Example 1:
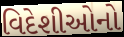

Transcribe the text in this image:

વિદેશીઓનો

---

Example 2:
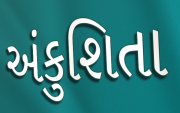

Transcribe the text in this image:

અંકુશિતા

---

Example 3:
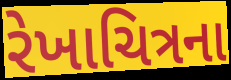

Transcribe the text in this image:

રેખાચિત્રના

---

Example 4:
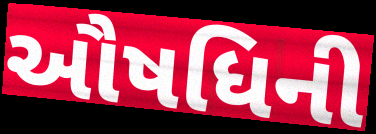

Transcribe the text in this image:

ઔષધિની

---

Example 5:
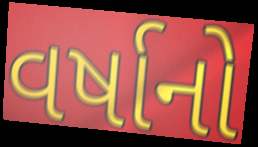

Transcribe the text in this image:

વર્ષાનો